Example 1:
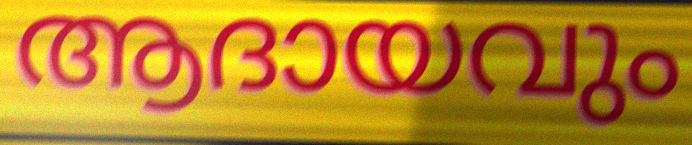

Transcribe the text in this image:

ആദായവും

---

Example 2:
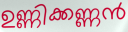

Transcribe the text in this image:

ഉണ്ണിക്കണ്ണൻ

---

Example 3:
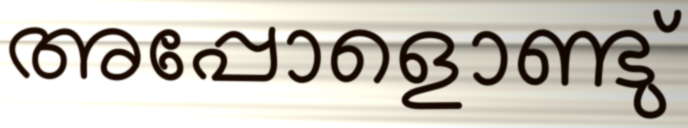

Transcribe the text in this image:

അപ്പോളൊണ്ടു്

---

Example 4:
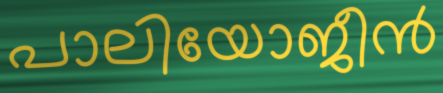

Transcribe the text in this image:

പാലിയോജീൻ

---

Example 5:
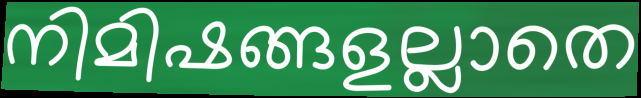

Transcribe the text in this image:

നിമിഷങ്ങളല്ലാതെ